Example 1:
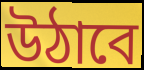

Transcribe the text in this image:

উঠাবে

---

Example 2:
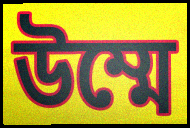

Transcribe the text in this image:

উম্মে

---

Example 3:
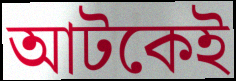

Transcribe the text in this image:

আটকেই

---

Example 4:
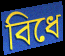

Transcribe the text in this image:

বিধে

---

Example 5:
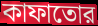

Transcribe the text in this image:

কাফাতোর